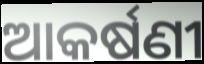
ଆକର୍ଷଣୀ